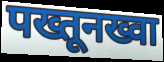
पख्तूनख्वा